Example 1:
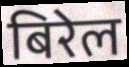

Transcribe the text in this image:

बिरेल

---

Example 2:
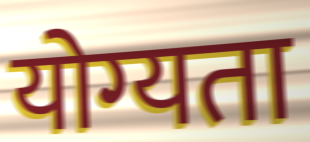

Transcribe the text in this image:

योग्‍यता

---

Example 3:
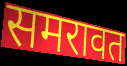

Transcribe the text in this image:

समरावत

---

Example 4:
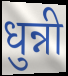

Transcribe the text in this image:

धुन्नी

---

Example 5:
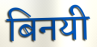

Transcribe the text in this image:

बिनयी